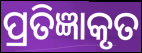
ପ୍ରତିଜ୍ଞାକୃତ